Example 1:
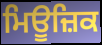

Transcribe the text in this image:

ਮਿਊਜ਼ਿਕ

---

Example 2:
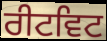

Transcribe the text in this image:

ਰੀਟਵਿਟ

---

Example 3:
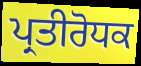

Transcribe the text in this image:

ਪ੍ਰਤੀਰੋਧਕ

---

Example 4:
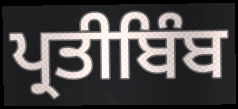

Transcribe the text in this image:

ਪ੍ਰਤੀਬਿੰਬ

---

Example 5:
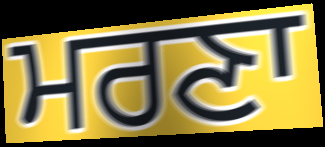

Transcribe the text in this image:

ਮਰਣਾ